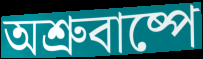
অশ্রুবাষ্পে